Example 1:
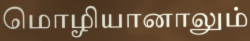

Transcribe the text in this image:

மொழியானாலும்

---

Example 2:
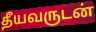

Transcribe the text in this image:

தீயவருடன்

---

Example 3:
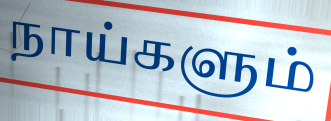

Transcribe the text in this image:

நாய்களும்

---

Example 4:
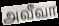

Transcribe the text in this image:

அவீவா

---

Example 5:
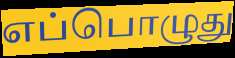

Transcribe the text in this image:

எப்பொழுது